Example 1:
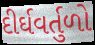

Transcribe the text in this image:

દીર્ઘવર્તુળો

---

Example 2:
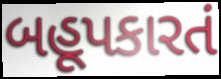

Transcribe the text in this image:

બહૂપકારતં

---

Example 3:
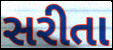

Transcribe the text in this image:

સરીતા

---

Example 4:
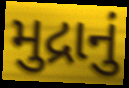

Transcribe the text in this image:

મુદ્રાનું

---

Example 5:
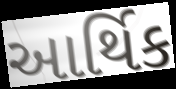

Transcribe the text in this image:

આર્થિક